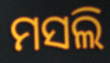
ମସଲି